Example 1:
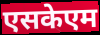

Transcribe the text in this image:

एसकेएम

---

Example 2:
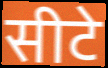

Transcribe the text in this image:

सीटे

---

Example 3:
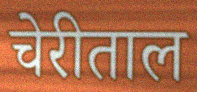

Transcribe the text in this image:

चेरीताल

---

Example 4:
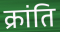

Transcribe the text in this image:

क्रांति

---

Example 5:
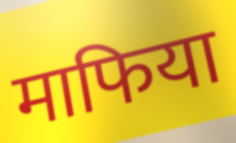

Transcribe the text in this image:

माफिया